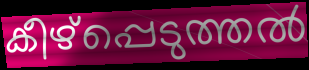
കീഴ്പ്പെടുത്തൽ